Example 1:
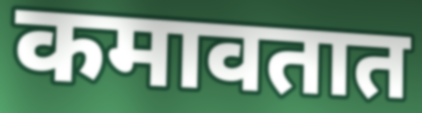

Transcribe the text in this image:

कमावतात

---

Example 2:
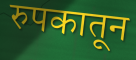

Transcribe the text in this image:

रुपकातून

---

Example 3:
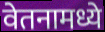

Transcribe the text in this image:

वेतनामध्ये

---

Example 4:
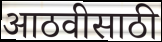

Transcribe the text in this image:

आठवीसाठी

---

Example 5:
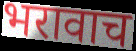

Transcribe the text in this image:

भरावाच